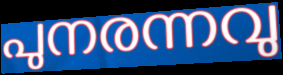
പുനരന്നവു